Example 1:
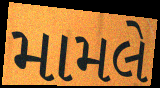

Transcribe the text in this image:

મામલે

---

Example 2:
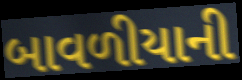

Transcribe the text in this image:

બાવળીયાની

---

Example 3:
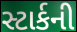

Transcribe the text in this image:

સ્ટાર્કની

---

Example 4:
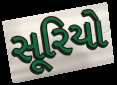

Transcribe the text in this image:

સૂરિયો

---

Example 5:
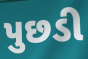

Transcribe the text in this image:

પુછડી